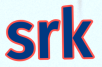
srk